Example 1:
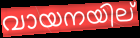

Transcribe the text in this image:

വായനയില്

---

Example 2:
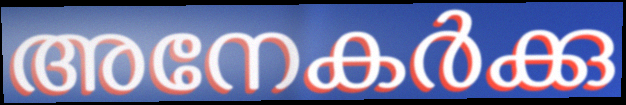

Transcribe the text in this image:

അനേകർക്കു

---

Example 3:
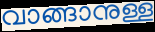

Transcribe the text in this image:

വാങ്ങാനുള്ള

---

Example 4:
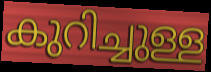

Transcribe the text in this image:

കുറിച്ചുള്ള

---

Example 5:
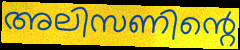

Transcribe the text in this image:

അലിസണിന്റെ